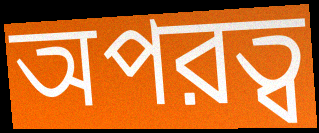
অপরত্ব